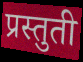
प्रस्तुती